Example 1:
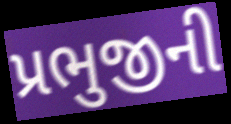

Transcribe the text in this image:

પ્રભુજીની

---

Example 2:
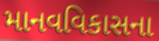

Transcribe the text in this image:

માનવવિકાસના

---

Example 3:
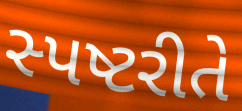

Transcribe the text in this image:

સ્પષ્ટરીતે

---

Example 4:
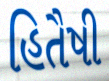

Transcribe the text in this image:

હિતૈષી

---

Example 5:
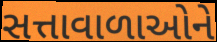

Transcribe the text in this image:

સત્તાવાળાઓને